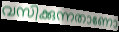
വസിക്കുന്നതാണോ